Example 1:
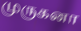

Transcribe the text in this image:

முருகனா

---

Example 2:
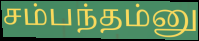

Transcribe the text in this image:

சம்பந்தம்னு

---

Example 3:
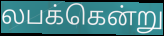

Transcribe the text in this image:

லபக்கென்று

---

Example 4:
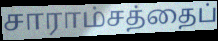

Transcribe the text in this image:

சாராம்சத்தைப்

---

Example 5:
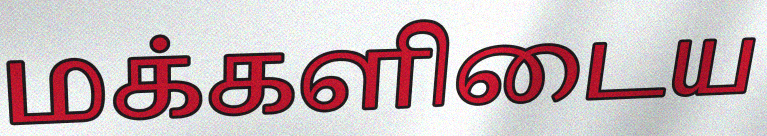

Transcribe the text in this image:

மக்களிடைய